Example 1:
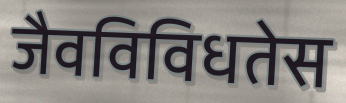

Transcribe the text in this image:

जैवविविधतेस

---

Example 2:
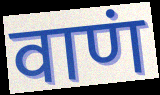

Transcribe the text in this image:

वाणं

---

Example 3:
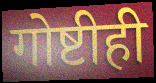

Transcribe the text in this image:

गोष्टीही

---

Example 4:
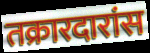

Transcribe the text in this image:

तक्रारदारांस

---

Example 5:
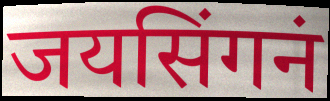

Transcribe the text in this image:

जयसिंगनं